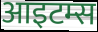
आइटम्‍स